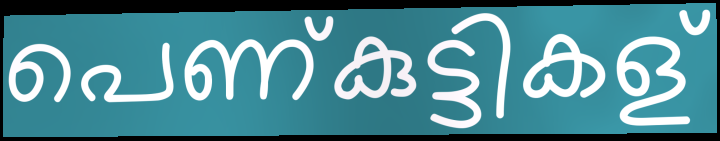
പെണ്കുട്ടികള്